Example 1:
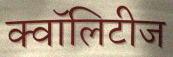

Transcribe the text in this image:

क्वॉलिटीज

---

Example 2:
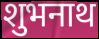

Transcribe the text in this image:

शुभनाथ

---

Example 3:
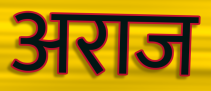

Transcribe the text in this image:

अराज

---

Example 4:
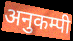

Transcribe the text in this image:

अनुकम्पी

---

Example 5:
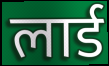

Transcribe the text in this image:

लार्ड